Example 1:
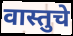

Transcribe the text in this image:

वास्तुचे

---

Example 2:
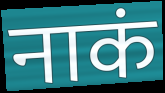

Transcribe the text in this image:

नाकं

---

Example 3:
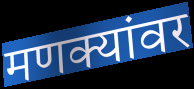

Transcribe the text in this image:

मणक्यांवर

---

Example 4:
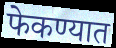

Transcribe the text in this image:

फेकण्यात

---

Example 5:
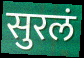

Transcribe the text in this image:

सुरलं